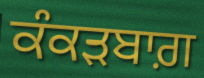
ਕੰਕੜਬਾਗ਼